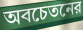
অবচেতনের